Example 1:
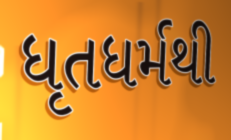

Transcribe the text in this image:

ધૃતધર્મથી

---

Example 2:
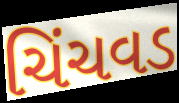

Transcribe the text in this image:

ચિંચવડ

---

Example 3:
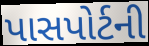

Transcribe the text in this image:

પાસપોર્ટની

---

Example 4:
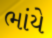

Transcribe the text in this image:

ભાંયે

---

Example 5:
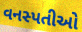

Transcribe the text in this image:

વનસ્પતીઓ